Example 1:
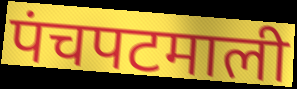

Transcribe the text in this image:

पंचपटमाली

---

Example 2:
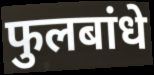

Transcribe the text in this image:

फुलबांधे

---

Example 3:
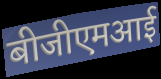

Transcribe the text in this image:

बीजीएमआई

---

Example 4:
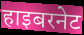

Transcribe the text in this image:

हाइबरनेट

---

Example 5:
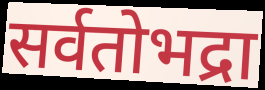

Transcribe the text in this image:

सर्वतोभद्रा